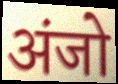
अंजो